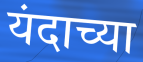
यंदाच्या